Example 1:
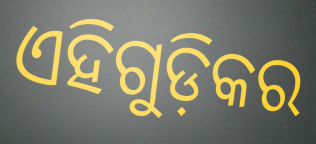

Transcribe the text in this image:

ଏହିଗୁଡ଼ିକର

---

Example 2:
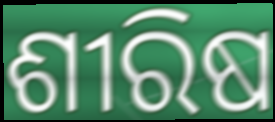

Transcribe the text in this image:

ଶୀରିଷ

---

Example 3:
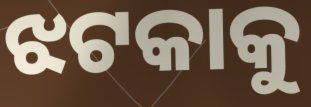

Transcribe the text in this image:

ଝଟକାକୁ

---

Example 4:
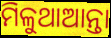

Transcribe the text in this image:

ମିଳୁଥାଆନ୍ତା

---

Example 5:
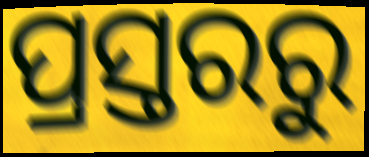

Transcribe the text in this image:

ପ୍ରସ୍ତରରୁ